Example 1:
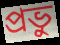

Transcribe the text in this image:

প্ৰভু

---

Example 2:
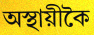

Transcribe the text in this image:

অস্থায়ীকৈ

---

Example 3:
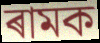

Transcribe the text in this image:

ৰামক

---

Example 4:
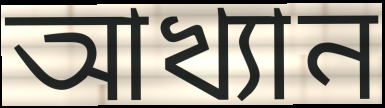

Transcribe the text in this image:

আখ্যান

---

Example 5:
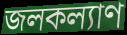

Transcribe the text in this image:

জলকল্যাণ